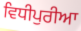
ਵਿਧੀਪੁਰੀਆ